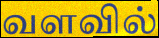
வளவில்